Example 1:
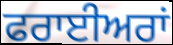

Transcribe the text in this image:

ਫਰਾਈਅਰਾਂ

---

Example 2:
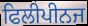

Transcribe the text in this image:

ਫਿਲੀਪੀਨਜ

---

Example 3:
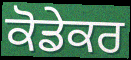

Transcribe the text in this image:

ਕੋਡੇਕਰ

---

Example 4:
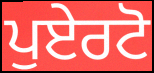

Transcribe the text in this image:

ਪੁਏਰਟੋ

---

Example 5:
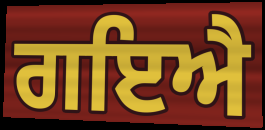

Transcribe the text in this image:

ਗਇਐ